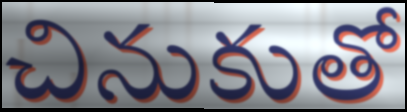
చినుకుతో